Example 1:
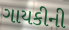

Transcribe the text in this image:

ગાયકીની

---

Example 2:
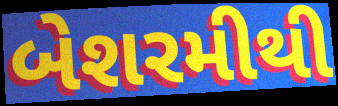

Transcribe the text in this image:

બેશરમીથી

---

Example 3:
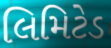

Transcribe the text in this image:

લિમિટેડ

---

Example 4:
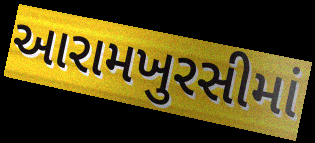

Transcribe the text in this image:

આરામખુરસીમાં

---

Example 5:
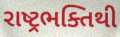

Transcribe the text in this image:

રાષ્ટ્રભક્તિથી